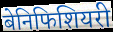
बेनिफिशियरी